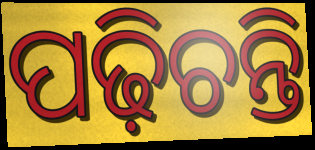
ପଢ଼ିଚନ୍ତି